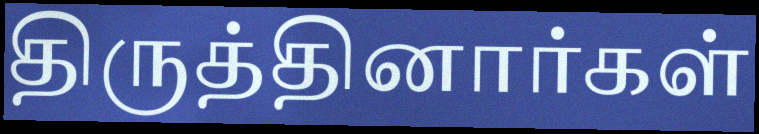
திருத்தினார்கள்